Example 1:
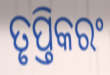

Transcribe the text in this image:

ତୃପ୍ତିକରଂ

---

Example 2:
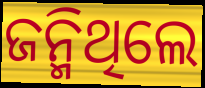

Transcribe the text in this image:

ଜନ୍ମିଥିଲେ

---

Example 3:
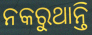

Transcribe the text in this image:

ନକରୁଥାନ୍ତି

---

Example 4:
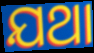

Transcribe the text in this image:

ଯଥା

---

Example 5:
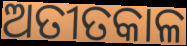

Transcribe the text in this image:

ଅତୀତକାଳ